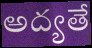
అద్యతే